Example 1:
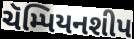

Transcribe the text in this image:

ચૅમ્પિયનશીપ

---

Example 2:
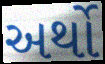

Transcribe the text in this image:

અર્થો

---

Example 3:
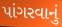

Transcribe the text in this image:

પાંગરવાનું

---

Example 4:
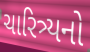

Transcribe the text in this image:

ચારિત્ર્યનો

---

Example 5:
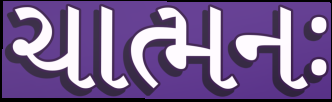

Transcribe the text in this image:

ચાત્મનઃ